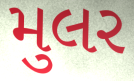
મુલર